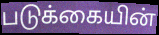
படுக்கையின்